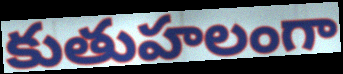
కుతుహలంగా